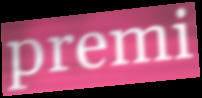
premi